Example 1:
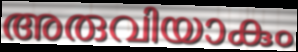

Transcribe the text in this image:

അരുവിയാകും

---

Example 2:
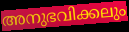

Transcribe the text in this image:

അനുഭവിക്കലും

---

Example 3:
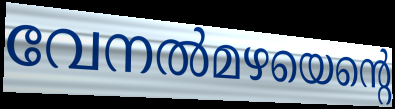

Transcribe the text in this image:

വേനൽമഴയെന്റെ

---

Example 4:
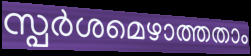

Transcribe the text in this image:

സ്പർശമെഴാത്തതാം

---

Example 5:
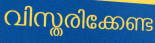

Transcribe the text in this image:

വിസ്തരിക്കേണ്ട